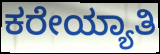
ಕರೇಯ್ಯಾತಿ